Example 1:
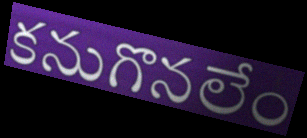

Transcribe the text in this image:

కనుగొనలేం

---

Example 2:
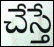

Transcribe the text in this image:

చేస్తే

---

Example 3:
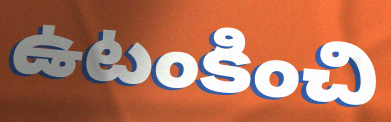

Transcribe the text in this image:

ఉటంకించి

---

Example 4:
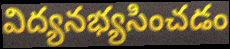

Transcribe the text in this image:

విద్యనభ్యసించడం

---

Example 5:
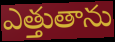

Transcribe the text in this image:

ఎత్తుతాను